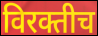
विरक्तीच